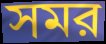
সমর